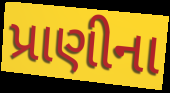
પ્રાણીના